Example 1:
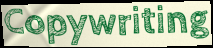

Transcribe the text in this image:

Copywriting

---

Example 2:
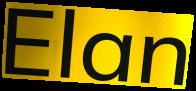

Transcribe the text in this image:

Elan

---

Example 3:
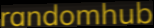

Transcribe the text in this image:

randomhub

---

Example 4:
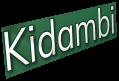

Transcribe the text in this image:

Kidambi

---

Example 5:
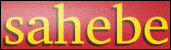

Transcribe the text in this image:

sahebe